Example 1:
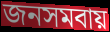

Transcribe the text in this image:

জনসমবায়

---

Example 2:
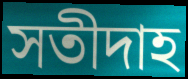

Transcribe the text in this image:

সতীদাহ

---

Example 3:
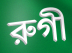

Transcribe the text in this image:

রুগী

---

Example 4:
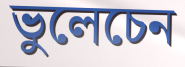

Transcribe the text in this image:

ভুলেচেন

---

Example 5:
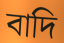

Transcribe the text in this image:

বাদি